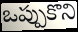
ఒప్పుకొని